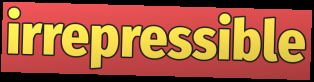
irrepressible